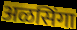
अळसिंगा